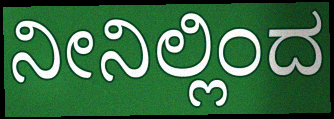
ನೀನಿಲ್ಲಿಂದ